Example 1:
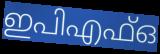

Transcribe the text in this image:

ഇപിഎഫ്ഒ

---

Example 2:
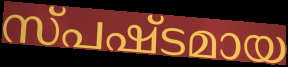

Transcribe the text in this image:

സ്പഷ്ടമായ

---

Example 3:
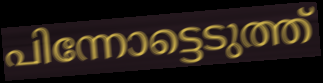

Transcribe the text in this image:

പിന്നോട്ടെടുത്ത്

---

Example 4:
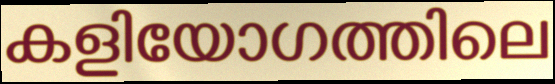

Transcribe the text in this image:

കളിയോഗത്തിലെ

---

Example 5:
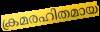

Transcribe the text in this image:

ക്രമരഹിതമായ